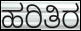
ಹರಿತಿರ